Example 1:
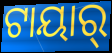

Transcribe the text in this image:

ଟାୟାର୍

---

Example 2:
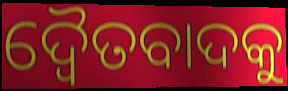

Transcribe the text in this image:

ଦ୍ୱୈତବାଦକୁ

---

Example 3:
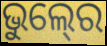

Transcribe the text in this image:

ଭୁଲ୍‍ରେ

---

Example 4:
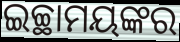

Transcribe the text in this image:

ଇଚ୍ଛାମୟଙ୍କର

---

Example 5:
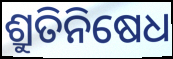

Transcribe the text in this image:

ଶ୍ରୁତିନିଷେଧ